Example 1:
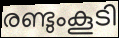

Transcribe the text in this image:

രണ്ടുംകൂടി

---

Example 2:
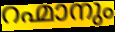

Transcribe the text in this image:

റഹ്മാനും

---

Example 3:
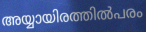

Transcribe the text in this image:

അയ്യായിരത്തിൽപരം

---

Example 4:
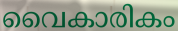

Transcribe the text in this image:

വൈകാരികം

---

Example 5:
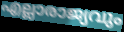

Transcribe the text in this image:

എല്ലാരാജ്യവും